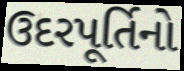
ઉદરપૂર્તિનો